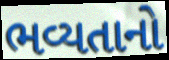
ભવ્યતાનો